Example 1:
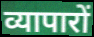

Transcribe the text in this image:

व्यापारों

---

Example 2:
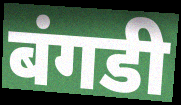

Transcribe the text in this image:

बंगडी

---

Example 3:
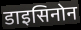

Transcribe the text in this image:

डाइसिनोन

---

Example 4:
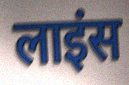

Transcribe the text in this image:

लाइंस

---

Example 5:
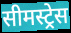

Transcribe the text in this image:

सीमस्ट्रेस